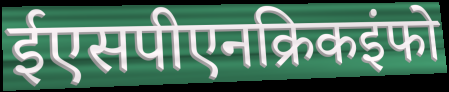
ईएसपीएनक्रिकइंफो